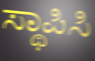
ಸ್ಥಾಪಿಸಿ